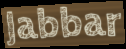
Jabbar